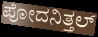
ಪೋದನಿತ್ತಲ್